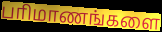
பரிமாணங்களை